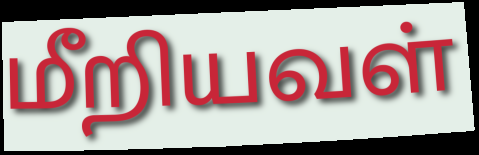
மீறியவள்